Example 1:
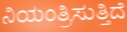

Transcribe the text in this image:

ನಿಯಂತ್ರಿಸುತ್ತಿದೆ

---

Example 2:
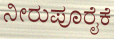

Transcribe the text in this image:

ನೀರುಪೂರೈಕೆ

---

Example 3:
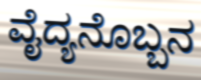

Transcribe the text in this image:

ವೈದ್ಯನೊಬ್ಬನ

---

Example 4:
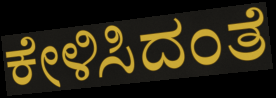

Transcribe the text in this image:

ಕೇಳಿಸಿದಂತೆ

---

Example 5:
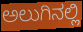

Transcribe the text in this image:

ಅಲುಗಿನಲ್ಲಿ